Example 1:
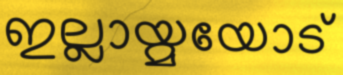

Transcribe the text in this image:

ഇല്ലായ്മയോട്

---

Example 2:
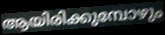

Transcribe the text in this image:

ആയിരിക്കുമ്പോഴും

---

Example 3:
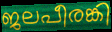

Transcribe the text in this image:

ജലപീരങ്കി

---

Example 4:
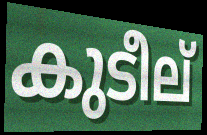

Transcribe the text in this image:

കുടീല്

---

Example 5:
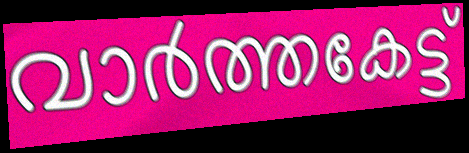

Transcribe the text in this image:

വാർത്തകേട്ട്